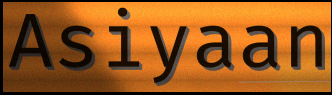
Asiyaan